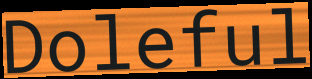
Doleful